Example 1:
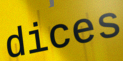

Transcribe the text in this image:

dices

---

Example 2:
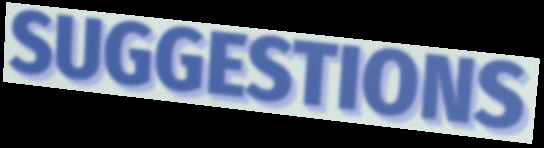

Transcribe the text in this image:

SUGGESTIONS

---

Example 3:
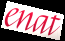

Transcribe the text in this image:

enat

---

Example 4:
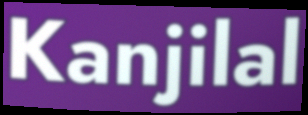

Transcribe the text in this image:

Kanjilal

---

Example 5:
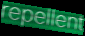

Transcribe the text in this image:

repellent